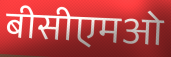
बीसीएमओ